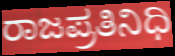
ರಾಜಪ್ರತಿನಿಧಿ